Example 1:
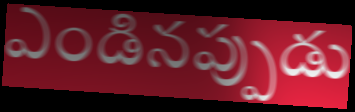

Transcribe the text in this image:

ఎండినప్పుడు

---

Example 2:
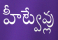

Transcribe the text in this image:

హీట్వేవ్లు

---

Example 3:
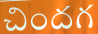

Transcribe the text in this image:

చిందగ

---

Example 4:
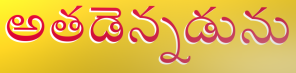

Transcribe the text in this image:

అతడెన్నడును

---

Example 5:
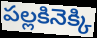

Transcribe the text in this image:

పల్లకినెక్కి